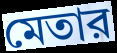
মেতার